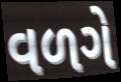
વળગે